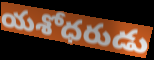
యశోధరుడు